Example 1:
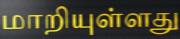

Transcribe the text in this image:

மாறியுள்ளது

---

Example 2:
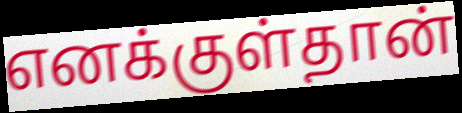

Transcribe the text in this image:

எனக்குள்தான்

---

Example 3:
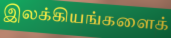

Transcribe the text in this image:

இலக்கியங்களைக்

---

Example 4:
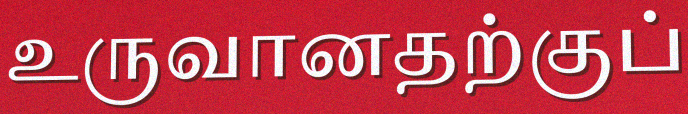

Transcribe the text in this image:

உருவானதற்குப்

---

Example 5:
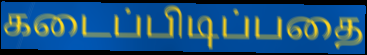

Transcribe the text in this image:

கடைப்பிடிப்பதை